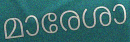
മാരേശാ